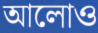
আলোও